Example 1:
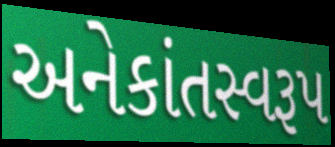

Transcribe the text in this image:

અનેકાંતસ્વરૂપ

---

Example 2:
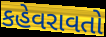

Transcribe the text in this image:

કહેવરાવતો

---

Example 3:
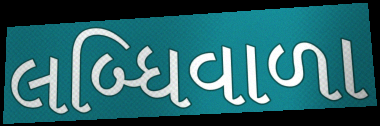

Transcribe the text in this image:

લબ્ધિવાળા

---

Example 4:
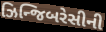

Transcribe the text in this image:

ઝિન્જિબરેસીની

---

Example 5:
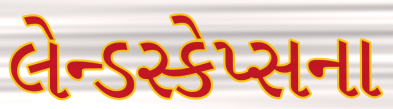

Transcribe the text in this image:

લેન્ડસ્કેપ્સના